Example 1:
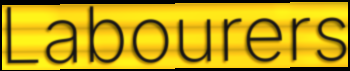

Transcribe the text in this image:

Labourers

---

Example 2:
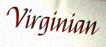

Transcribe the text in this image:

Virginian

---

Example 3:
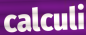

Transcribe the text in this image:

calculi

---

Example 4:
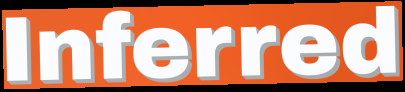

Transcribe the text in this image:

Inferred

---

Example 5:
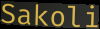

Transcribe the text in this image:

Sakoli